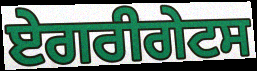
ਏਗਰੀਗੇਟਸ